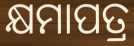
କ୍ଷମାପତ୍ର